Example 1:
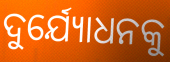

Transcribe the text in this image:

ଦୁର୍ଯ୍ୟୋଧନକୁ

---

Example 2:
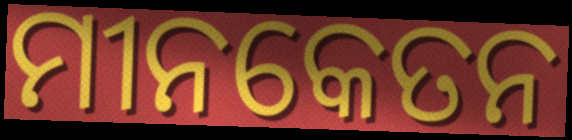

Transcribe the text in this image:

ମୀନକେତନ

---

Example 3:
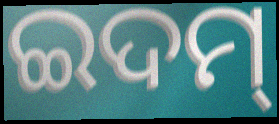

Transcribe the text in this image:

ଇଦମ୍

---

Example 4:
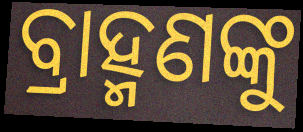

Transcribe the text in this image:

ବ୍ରାହ୍ମଣଙ୍କୁ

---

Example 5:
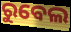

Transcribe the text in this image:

ରୁବେଲ